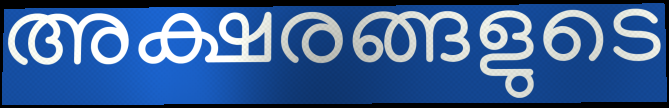
അക്ഷരങ്ങളുടെ